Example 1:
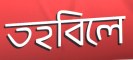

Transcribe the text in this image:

তহবিলে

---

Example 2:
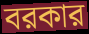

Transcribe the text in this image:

বরকার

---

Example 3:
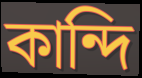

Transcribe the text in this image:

কান্দি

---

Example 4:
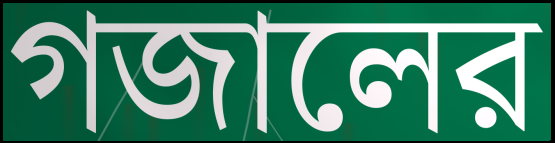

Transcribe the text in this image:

গজালের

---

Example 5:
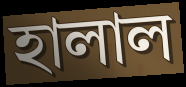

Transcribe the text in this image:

হালাল